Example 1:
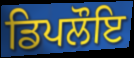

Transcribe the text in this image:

ਡਿਪਲੌਇ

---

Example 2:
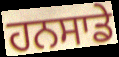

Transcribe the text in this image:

ਹਨਸਾਡੇ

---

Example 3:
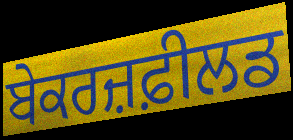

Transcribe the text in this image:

ਬੇਕਰਜ਼ਫ਼ੀਲਡ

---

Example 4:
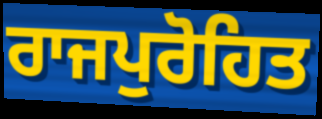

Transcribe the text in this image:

ਰਾਜਪੁਰੋਹਿਤ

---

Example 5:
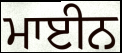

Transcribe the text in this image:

ਮਾਈਨ